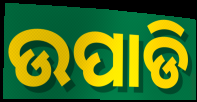
ଉପାଡି